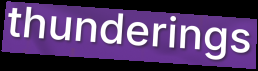
thunderings